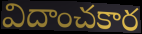
విదాంచకార